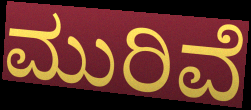
ಮುರಿವೆ